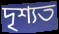
দৃশ্যত